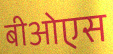
बीओएस